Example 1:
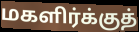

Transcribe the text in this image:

மகளிர்க்குத்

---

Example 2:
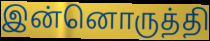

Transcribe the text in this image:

இன்னொருத்தி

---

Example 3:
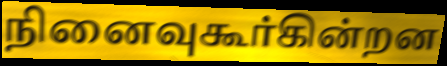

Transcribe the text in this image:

நினைவுகூர்கின்றன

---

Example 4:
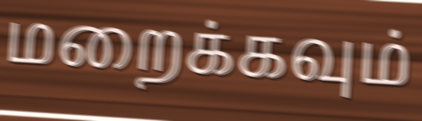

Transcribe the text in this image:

மறைக்கவும்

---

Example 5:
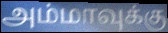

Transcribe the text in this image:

அம்மாவுக்கு